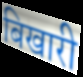
बिखारी